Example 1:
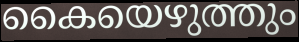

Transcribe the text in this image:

കൈയെഴുത്തും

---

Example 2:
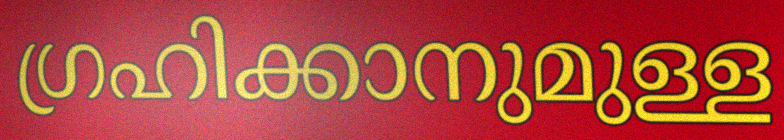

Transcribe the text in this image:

ഗ്രഹിക്കാനുമുള്ള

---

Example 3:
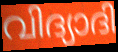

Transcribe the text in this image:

വിദ്യാദി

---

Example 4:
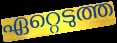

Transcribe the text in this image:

ഏറ്റെടുത്ത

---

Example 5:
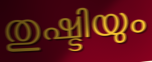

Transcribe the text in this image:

തുഷ്ടിയും